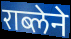
राब्लेने